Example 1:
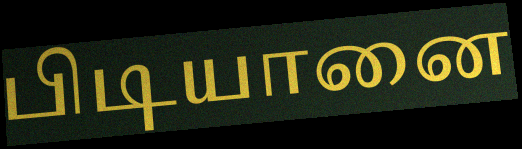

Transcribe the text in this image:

பிடியானை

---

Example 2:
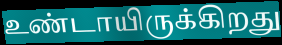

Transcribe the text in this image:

உண்டாயிருக்கிறது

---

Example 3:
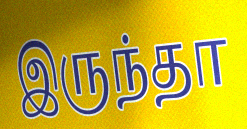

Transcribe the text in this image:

இருந்தா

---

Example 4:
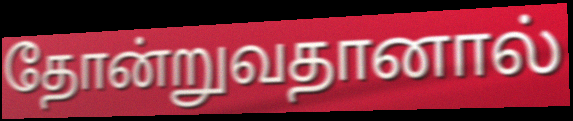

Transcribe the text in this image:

தோன்றுவதானால்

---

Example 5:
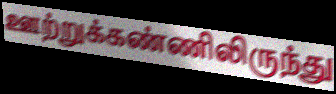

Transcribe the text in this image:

ஊற்றுக்கண்ணிலிருந்து